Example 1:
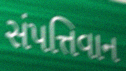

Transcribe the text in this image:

સંપત્તિવાન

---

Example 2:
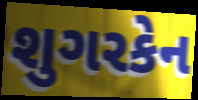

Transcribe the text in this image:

શુગરકેન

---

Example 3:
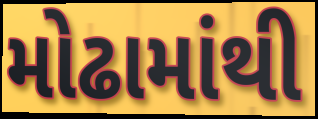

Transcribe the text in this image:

મોઢામાંથી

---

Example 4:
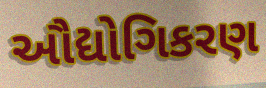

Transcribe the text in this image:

ઔદ્યોગિકરણ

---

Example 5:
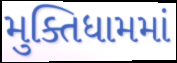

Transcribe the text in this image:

મુક્તિધામમાં